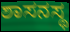
ಶಾಸನಸ್ಥ